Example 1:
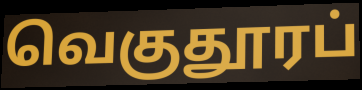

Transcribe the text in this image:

வெகுதூரப்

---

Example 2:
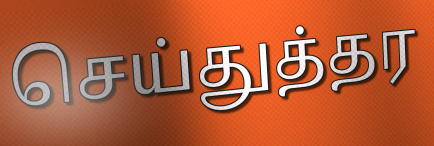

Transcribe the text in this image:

செய்துத்தர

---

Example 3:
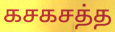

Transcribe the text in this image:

கசகசத்த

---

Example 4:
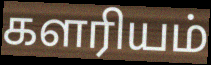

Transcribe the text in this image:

களரியம்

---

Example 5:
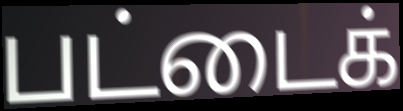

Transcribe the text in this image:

பட்டைக்